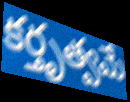
కర్తృత్వమే